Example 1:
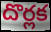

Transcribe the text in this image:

దొర్లక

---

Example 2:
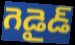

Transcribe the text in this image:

గెడైడ్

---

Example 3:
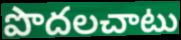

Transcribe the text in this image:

పొదలచాటు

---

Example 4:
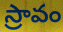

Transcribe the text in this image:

స్రావం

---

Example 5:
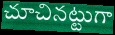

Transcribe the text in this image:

చూచినట్టుగా